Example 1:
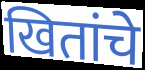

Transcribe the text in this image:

खितांचे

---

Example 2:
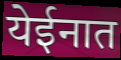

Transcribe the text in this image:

येईनात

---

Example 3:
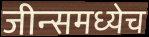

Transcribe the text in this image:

जीन्समध्येच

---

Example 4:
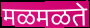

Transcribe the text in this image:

मळमळते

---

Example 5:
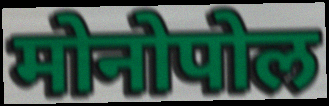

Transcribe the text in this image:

मोनोपोल